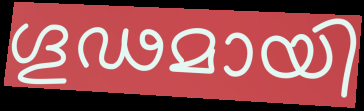
ഗൂഢമായി